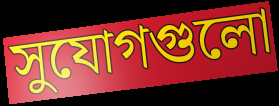
সুযোগগুলো